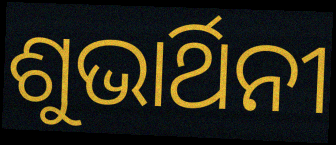
ଶୁଭାର୍ଥିନୀ